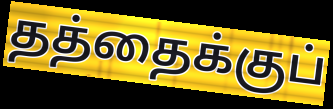
தத்தைக்குப்